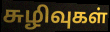
சுழிவுகள்